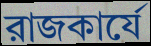
রাজকার্যে